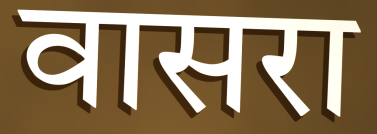
वासरा